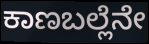
ಕಾಣಬಲ್ಲೆನೇ